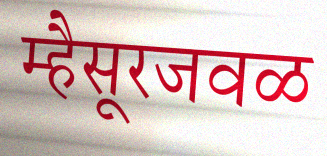
म्हैसूरजवळ